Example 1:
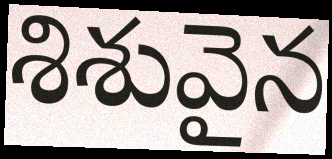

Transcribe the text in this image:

శిశువైన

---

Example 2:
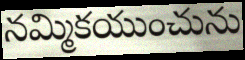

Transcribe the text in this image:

నమ్మికయుంచును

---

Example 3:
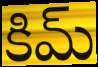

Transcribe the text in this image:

కిమ్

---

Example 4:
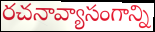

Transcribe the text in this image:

రచనావ్యాసంగాన్ని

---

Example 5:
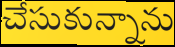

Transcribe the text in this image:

చేసుకున్నాను